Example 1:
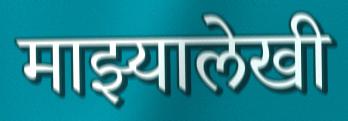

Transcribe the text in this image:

माझ्यालेखी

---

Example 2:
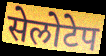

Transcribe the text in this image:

सेलोटेप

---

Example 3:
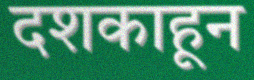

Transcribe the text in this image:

दशकाहून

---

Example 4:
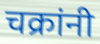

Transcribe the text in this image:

चक्रांनी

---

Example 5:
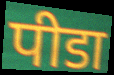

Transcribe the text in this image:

पीडा